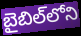
బైబిల్‌లోని